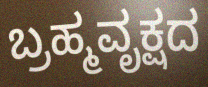
ಬ್ರಹ್ಮವೃಕ್ಷದ